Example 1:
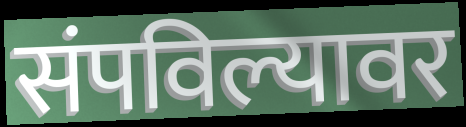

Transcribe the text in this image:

संपविल्यावर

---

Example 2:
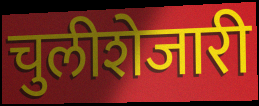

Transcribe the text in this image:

चुलीशेजारी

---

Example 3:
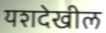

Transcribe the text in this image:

यशदेखील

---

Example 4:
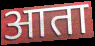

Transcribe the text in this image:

आता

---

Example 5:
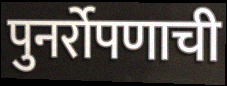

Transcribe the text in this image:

पुनर्रोपणाची